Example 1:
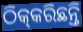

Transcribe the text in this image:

ଠିକ୍‌କରିଛନ୍ତି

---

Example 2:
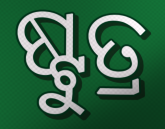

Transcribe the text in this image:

ଷ୍ଟୁତ୍ର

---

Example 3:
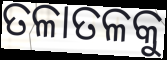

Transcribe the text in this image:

ତଳାତଳକୁ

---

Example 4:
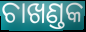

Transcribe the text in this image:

ଚାଖଣ୍ଡକ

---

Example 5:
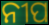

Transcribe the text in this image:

ନୀପ